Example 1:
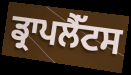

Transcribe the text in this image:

ਡ੍ਰਾਪਲੈੱਟਸ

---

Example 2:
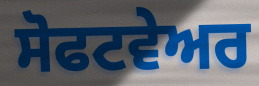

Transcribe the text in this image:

ਸੋਫਟਵੇਅਰ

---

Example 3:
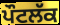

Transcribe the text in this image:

ਪੌਟਲੱਕ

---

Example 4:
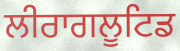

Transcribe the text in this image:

ਲੀਰਾਗਲੂਟਿਡ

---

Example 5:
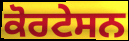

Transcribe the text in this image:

ਕੋਰਟੇਸਨ